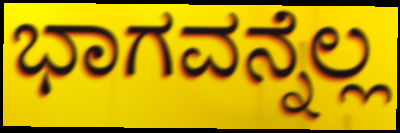
ಭಾಗವನ್ನೆಲ್ಲ